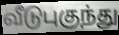
வீடுபுகுந்து